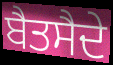
ਬੈਤਸੈਦੇ